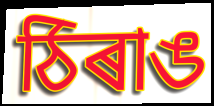
ঠিৰাঙ